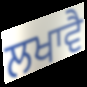
ਲਖਾਵੈ